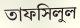
তাফসিলুল